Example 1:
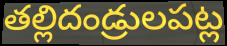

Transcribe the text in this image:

తల్లిదండ్రులపట్ల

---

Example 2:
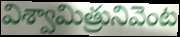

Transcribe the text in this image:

విశ్వామిత్రునివెంట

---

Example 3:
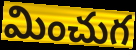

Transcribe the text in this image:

మించుగ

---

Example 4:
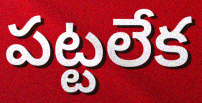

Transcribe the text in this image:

పట్టలేక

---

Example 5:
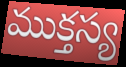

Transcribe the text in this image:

ముక్తస్య